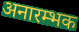
अनारम्भक